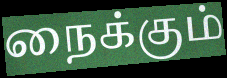
நைக்கும்